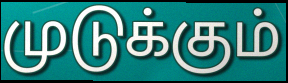
முடுக்கும்